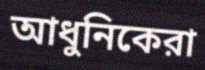
আধুনিকেরা